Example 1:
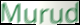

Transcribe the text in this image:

Murud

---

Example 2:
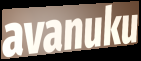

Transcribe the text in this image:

avanuku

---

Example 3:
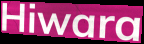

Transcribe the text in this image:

Hiwara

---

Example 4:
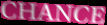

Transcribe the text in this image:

CHANCE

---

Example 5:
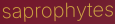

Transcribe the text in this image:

saprophytes